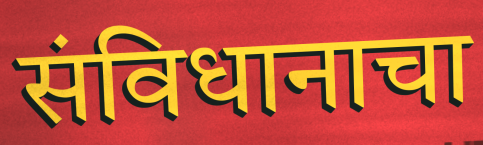
संविधानाचा